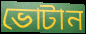
ভোটান